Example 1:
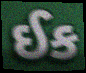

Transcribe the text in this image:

ઈક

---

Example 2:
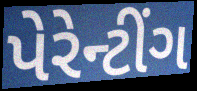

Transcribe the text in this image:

પેરેન્ટીંગ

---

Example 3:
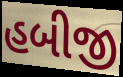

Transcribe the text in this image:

હબીજી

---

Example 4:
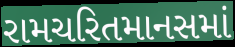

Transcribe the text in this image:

રામચરિતમાનસમાં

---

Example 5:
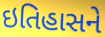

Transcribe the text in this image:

ઇતિહાસને